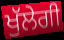
ਖੁੱਲੇਗੀ